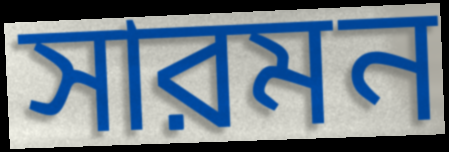
সারমন